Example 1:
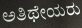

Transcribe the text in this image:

ಅತಿಥೇಯರು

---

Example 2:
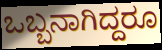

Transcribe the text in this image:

ಒಬ್ಬನಾಗಿದ್ದರೂ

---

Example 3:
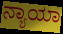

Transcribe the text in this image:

ನ್ಯಾಯಾ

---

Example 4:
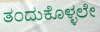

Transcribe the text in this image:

ತಂದುಕೊಳ್ಳಲೇ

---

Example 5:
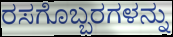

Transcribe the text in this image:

ರಸಗೊಬ್ಬರಗಳನ್ನು